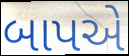
બાપએ